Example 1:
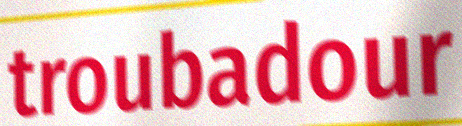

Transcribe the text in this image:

troubadour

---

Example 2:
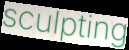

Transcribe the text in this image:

sculpting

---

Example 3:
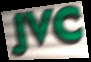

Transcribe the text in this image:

JVC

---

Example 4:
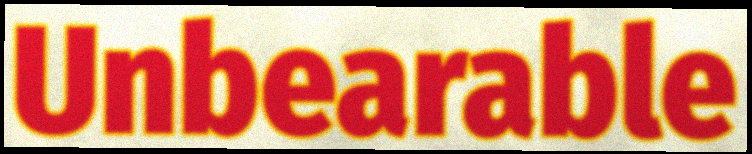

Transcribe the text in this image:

Unbearable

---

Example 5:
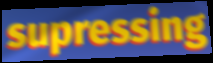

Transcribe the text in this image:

supressing